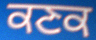
ਕਣਕ